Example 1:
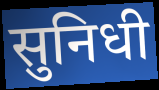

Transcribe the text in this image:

सुनिधी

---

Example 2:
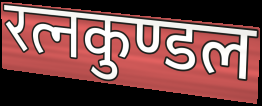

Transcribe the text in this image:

रत्नकुण्डल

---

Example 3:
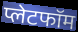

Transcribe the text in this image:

प्लेटफॉम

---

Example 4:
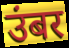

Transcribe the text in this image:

उंबर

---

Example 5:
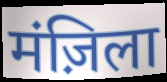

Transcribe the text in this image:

मंज़िला